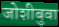
जोशीबुवा